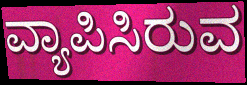
ವ್ಯಾಪಿಸಿರುವ